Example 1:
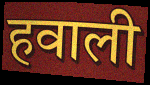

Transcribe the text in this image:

हवाली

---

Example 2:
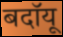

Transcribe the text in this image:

बदॉयू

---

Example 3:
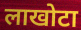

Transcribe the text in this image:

लाखोटा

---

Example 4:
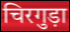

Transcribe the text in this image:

चिरगुड़ा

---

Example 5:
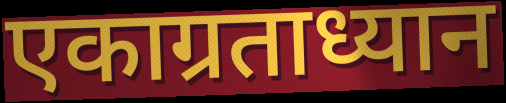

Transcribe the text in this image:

एकाग्रताध्यान